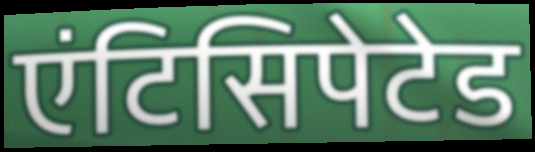
एंटिसिपेटेड